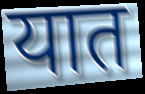
यात